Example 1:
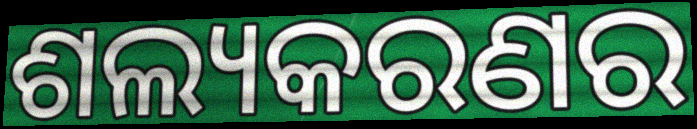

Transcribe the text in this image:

ଶଲ୍ୟକରଣର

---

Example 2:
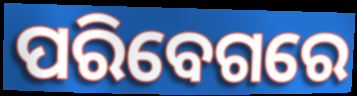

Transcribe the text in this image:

ପରିବେଗରେ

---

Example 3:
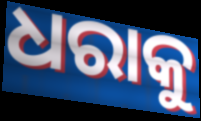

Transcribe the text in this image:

ଧରାକୁ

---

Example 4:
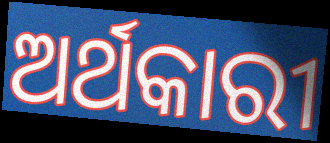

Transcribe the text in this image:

ଅର୍ଥକାରୀ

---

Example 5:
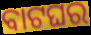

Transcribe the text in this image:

ବାଟଘର